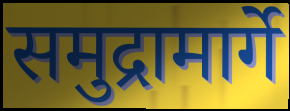
समुद्रामार्गे